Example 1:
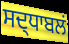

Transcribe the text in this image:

ਸਦ੍ਧਾਬਲਂ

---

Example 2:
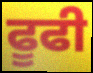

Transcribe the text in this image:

ਫੂਫੀ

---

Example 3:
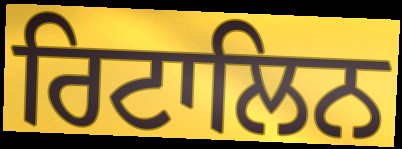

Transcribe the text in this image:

ਰਿਟਾਲਿਨ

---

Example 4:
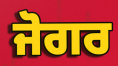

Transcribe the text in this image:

ਜੋਗਰ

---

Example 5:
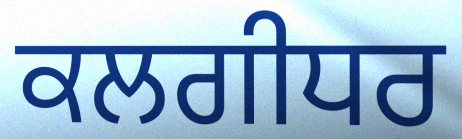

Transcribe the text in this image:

ਕਲਗੀਧਰ